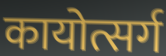
कायोत्सर्ग